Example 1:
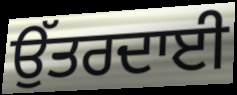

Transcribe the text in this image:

ਉੱਤਰਦਾਈ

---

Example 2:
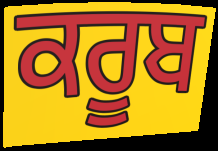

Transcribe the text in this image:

ਕਰੂਬ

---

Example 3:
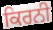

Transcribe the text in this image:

ਕਿਰਨੀ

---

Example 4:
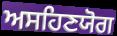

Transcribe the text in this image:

ਅਸਹਿਣਯੋਗ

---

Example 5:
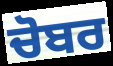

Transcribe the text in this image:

ਚੋਬਰ